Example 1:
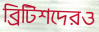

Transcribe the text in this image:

ব্রিটিশদেরও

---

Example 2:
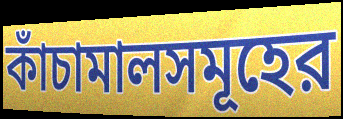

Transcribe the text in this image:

কাঁচামালসমূহের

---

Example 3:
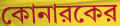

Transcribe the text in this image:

কোনারকের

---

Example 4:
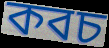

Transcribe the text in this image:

কবচ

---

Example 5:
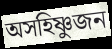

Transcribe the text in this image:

অসহিষ্ণুজন